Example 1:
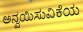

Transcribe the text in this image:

ಅನ್ವಯಿಸುವಿಕೆಯ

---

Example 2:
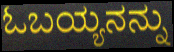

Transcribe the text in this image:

ಓಬಯ್ಯನನ್ನು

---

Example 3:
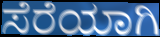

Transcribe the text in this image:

ಸೆರೆಯಾಗಿ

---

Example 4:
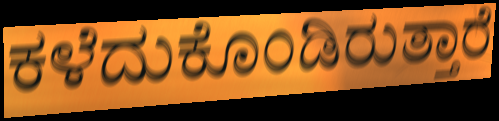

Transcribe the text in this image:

ಕಳೆದುಕೊಂಡಿರುತ್ತಾರೆ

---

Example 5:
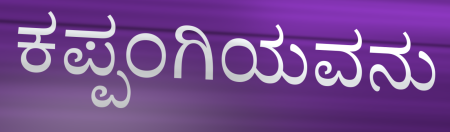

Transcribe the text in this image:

ಕಪ್ಪಂಗಿಯವನು